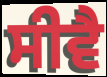
ਸੀਵੈ